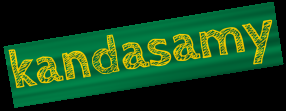
kandasamy